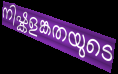
നിഷ്കളങ്കതയുടെ